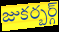
జుకర్బర్గ్